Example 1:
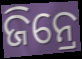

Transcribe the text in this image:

ଜିନ୍ରେ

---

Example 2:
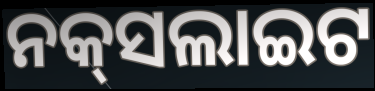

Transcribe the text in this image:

ନକ୍‌ସଲାଇଟ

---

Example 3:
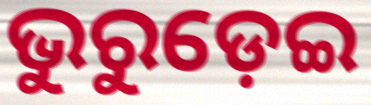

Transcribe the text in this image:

ଭୁରୁଡ଼େଇ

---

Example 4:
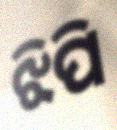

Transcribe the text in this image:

ଝିପି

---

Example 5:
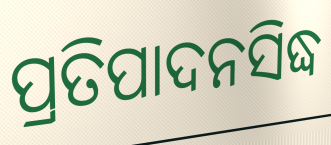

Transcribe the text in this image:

ପ୍ରତିପାଦନସିଦ୍ଧ